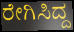
ರೇಗಿಸಿದ್ದ